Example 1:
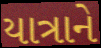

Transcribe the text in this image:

યાત્રાને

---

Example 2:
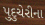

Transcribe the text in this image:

પુદુચેરીના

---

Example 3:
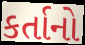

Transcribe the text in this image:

કર્તાનો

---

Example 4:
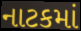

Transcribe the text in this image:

નાટકમાં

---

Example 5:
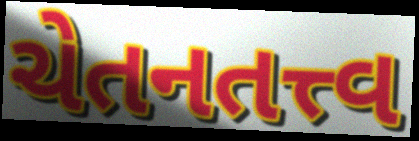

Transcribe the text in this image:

ચેતનતત્ત્વ